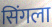
सिंगला